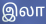
இலா